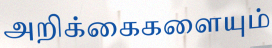
அறிக்கைகளையும்